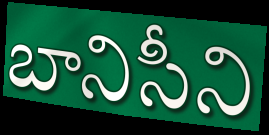
బానిసీని